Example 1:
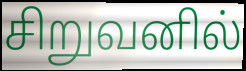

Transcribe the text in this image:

சிறுவனில்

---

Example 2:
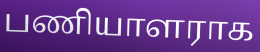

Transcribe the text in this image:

பணியாளராக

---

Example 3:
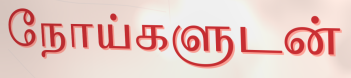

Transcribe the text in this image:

நோய்களுடன்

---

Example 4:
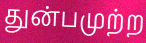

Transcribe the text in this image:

துன்பமுற்ற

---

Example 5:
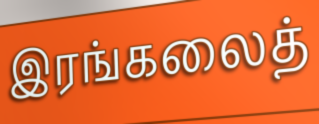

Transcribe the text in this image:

இரங்கலைத்